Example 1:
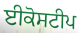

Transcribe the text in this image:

ਈਕੋਸਟੀਪ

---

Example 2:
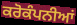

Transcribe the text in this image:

ਕਰੋਕੰਪਨੀਆਂ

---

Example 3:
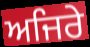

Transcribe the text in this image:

ਅਜਿਰੇ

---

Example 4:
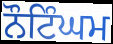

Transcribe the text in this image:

ਨੌਟਿੰਘਮ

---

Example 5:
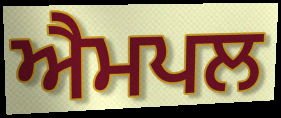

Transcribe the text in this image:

ਐਮਪਲ